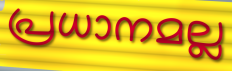
പ്രധാനമല്ല